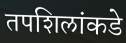
तपशिलांकडे